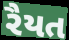
રૈયત